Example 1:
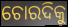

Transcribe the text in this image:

ଚୋରଦିକୁ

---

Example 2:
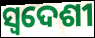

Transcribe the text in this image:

ସ୍ୱଦେଶୀ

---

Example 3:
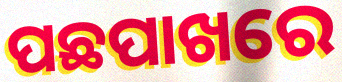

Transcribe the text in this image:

ପଛପାଖରେ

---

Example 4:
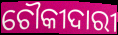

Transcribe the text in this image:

ଚୌକୀଦାରୀ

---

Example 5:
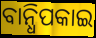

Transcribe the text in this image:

ବାନ୍ଧିପକାଇ